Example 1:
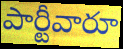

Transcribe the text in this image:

పార్టీవారూ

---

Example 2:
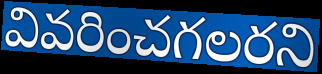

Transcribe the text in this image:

వివరించగలరని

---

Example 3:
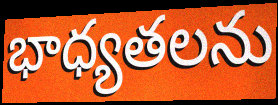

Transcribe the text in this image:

భాధ్యతలను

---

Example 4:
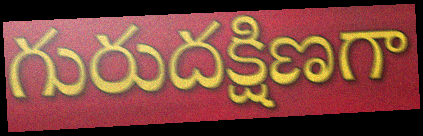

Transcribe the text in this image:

గురుదక్షిణగా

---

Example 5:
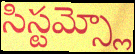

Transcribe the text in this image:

సిస్టమ్స్లో